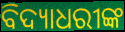
ବିଦ୍ୟାଧରୀଙ୍କ